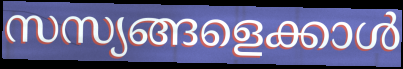
സസ്യങ്ങളെക്കാൾ